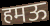
हमऊ